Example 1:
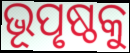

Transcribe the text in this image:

ଭୂପୃଷ୍ଠକୁ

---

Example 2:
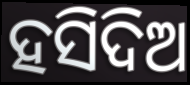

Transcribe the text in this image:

ହସିଦିଅ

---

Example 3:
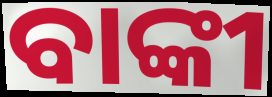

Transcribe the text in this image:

ବାଙ୍କୀ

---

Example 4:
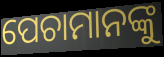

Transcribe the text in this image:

ପେଚାମାନଙ୍କୁ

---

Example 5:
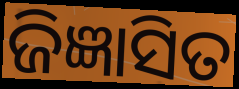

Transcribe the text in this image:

ଜିଜ୍ଞାସିତ